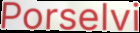
Porselvi